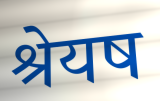
श्रेयष